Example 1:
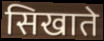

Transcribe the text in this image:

सिखाते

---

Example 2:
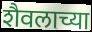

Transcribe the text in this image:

शैवलाच्या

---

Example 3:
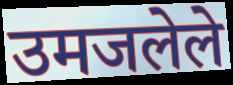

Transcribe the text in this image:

उमजलेले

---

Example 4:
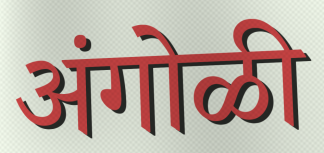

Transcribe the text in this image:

अंगोळी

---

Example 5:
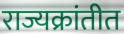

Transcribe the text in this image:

राज्यक्रांतीत